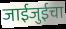
जाईजुईचा